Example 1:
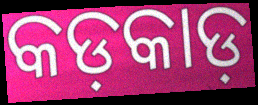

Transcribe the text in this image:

କଡ଼କାଡ଼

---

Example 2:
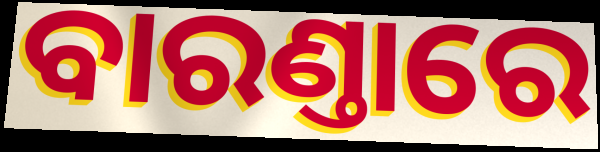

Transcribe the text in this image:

ବାରଣ୍ତାରେ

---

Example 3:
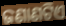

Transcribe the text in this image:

ଜଣାଣଟିଏ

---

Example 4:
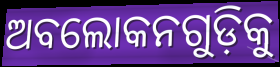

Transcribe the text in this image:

ଅବଲୋକନଗୁଡ଼ିକୁ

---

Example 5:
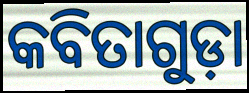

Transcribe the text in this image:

କବିତାଗୁଡ଼ା